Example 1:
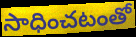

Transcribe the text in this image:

సాధించటంతో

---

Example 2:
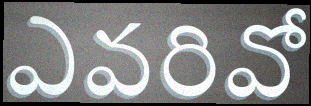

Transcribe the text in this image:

ఎవరివో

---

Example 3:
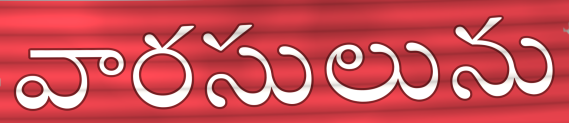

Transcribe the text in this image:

వారసులును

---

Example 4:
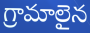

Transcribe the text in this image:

గ్రామాలైన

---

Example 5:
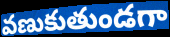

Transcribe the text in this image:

వణుకుతుండగా